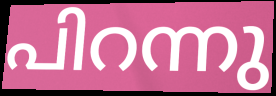
പിറന്നു